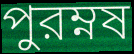
পুরম্নষ